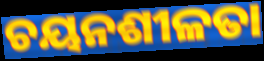
ଚୟନଶୀଳତା